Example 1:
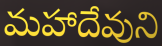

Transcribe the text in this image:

మహాదేవుని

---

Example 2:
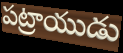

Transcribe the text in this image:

పట్రాయుడు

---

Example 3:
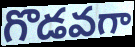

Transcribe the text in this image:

గొడవగా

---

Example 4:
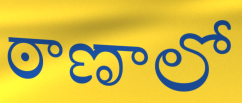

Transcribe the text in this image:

ఠాణాలో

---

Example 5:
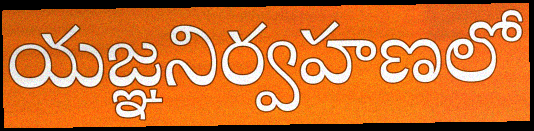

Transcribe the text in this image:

యజ్ఞనిర్వహణలో